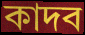
কাদব